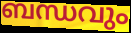
ബന്ധവും